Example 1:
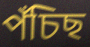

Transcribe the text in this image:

পঁচিছ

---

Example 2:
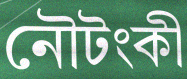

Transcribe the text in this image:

নৌটংকী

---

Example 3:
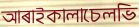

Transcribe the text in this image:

আৰাইকালাচেলভি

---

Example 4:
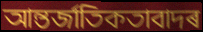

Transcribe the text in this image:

আন্তৰ্জাতিকতাবাদৰ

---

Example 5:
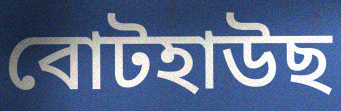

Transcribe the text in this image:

বোটহাউছ